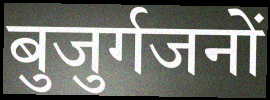
बुजुर्गजनों